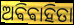
ଅଵିଵାହିତା